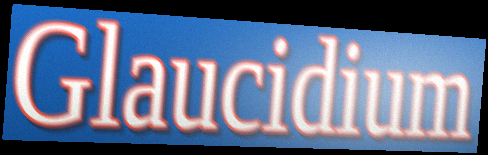
Glaucidium